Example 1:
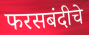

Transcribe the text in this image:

फरसबंदीचे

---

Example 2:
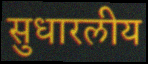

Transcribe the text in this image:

सुधारलीय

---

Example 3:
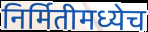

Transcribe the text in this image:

निर्मितीमध्येच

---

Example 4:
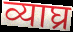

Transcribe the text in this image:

व्याघ्र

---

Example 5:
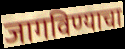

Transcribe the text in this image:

जागविण्याचा